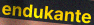
endukante